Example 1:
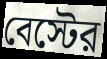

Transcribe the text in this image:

বেস্টের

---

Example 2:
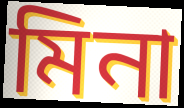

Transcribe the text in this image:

মিনা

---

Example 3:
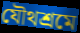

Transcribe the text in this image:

যৌথশ্রমে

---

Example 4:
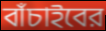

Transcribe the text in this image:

বাঁচাইবের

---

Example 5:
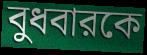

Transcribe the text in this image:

বুধবারকে